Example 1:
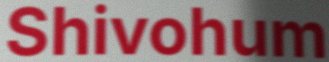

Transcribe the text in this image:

Shivohum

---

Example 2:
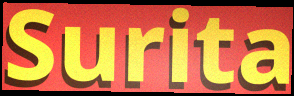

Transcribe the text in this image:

Surita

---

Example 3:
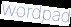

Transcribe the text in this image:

wordpad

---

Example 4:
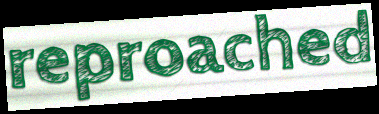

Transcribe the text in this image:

reproached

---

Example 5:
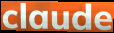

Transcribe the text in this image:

claude